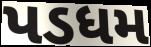
પડધમ